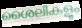
ശൈലികളും